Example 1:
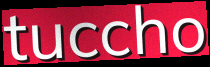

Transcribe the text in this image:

tuccho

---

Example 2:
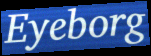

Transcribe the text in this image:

Eyeborg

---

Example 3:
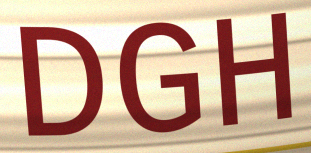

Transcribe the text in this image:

DGH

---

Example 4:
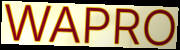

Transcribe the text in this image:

WAPRO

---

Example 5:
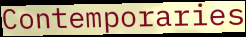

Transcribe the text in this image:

Contemporaries